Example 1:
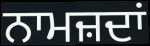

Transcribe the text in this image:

ਨਾਮਜ਼ਦਾਂ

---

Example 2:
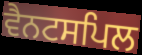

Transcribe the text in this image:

ਵੈਨਟਸਪਿਲ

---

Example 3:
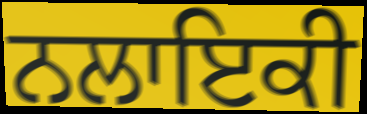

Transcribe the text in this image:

ਨਲਾਇਕੀ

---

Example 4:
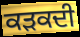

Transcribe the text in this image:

ਕੜਕਦੀ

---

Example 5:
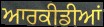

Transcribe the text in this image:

ਆਰਕੀਡੀਆਂ